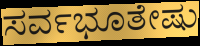
ಸರ್ವಭೂತೇಷು